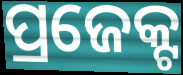
ପ୍ରଜେକ୍ଟ